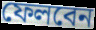
ফেলবেন